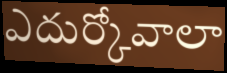
ఎదుర్కోవాలా